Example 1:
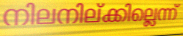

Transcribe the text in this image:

നിലനില്ക്കില്ലെന്ന്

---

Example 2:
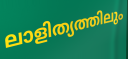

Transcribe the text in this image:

ലാളിത്യത്തിലും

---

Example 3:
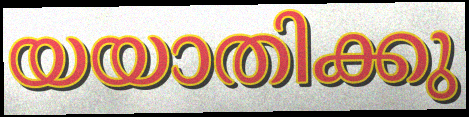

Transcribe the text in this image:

യയാതിക്കു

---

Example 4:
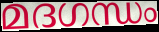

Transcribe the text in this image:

മദഗന്ധം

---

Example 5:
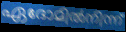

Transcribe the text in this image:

ഏദോമിൽനിന്ന്